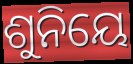
ଶୁନିୟେ